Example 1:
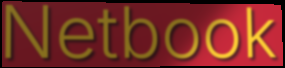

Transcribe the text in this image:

Netbook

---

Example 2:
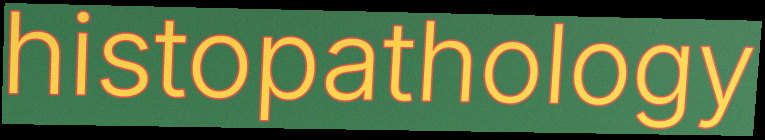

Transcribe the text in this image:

histopathology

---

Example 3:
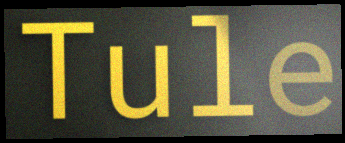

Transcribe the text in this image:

Tule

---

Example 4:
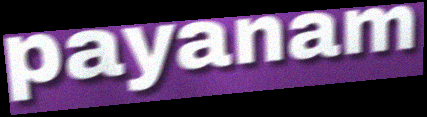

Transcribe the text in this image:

payanam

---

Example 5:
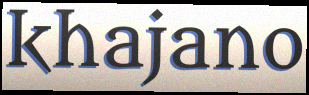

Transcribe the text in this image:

khajano